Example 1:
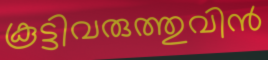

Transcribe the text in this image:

കൂട്ടിവരുത്തുവിൻ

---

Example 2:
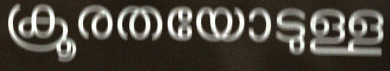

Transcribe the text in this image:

ക്രൂരതയോടുള്ള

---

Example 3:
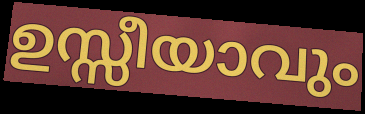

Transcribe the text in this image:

ഉസ്സീയാവും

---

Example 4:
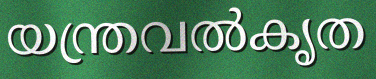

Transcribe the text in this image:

യന്ത്രവൽകൃത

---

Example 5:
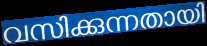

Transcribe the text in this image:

വസിക്കുന്നതായി